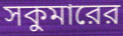
সকুমারের